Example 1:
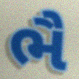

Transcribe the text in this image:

ભૈ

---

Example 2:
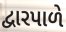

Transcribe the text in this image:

દ્વારપાળે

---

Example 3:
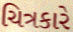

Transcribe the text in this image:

ચિત્રકારે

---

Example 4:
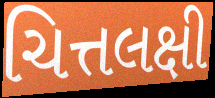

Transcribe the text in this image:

ચિત્તલક્ષી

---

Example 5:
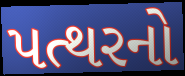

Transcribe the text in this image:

પત્થરનો